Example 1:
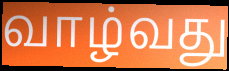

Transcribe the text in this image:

வாழ்வது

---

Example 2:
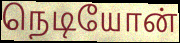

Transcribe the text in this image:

நெடியோன்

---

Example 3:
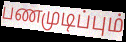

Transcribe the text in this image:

பணமுடிப்பும்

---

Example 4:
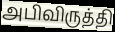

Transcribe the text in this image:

அபிவிருத்தி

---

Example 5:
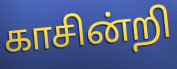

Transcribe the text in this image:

காசின்றி